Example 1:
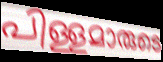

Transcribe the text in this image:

പിള്ളമാരുടെ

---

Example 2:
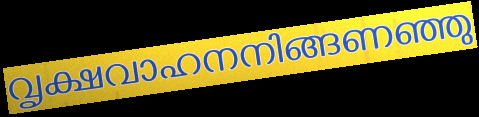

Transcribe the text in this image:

വൃക്ഷവാഹനനിങ്ങണഞ്ഞു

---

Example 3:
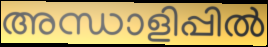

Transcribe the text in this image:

അന്ധാളിപ്പിൽ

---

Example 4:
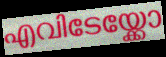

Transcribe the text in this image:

എവിടേയ്ക്കോ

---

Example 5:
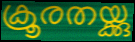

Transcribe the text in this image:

ക്രൂരതയ്ക്കു